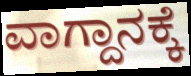
ವಾಗ್ದಾನಕ್ಕೆ